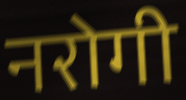
नरोगी